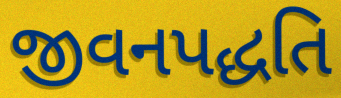
જીવનપદ્ધતિ